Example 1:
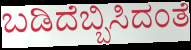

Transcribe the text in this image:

ಬಡಿದೆಬ್ಬಿಸಿದಂತೆ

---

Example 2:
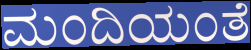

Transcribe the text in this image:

ಮಂದಿಯಂತೆ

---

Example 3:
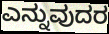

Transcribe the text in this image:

ಎನ್ನುವುದರ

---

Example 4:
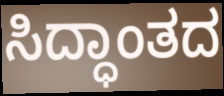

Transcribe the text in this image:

ಸಿದ್ಧಾಂತದ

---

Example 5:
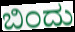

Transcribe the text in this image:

ಬಿಂದು